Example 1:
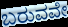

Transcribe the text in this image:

ಬರುವವೇ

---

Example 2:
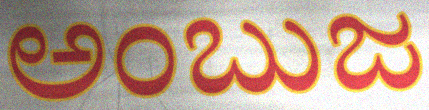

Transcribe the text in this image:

ಅಂಬುಜ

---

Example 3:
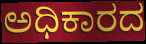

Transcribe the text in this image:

ಅಧಿಕಾರದ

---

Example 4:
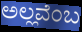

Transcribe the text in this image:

ಅಲ್ಲವೆಂಬ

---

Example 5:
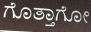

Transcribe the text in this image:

ಗೊತ್ತಾಗೋ